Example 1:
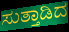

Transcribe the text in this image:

ಸುತ್ತಾಡಿದ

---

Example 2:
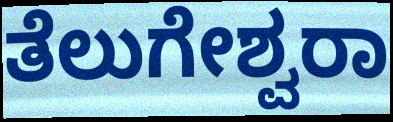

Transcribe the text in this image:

ತೆಲುಗೇಶ್ವರಾ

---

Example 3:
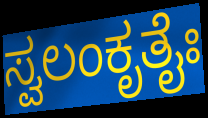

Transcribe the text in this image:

ಸ್ವಲಂಕೃತೈಃ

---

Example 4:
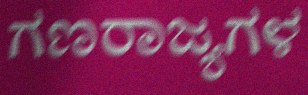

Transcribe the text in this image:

ಗಣರಾಜ್ಯಗಳ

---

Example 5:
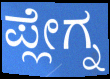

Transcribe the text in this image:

ಪ್ಲೇಗ್ನ